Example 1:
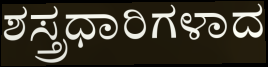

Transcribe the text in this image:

ಶಸ್ತ್ರಧಾರಿಗಳಾದ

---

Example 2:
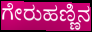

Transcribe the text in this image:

ಗೇರುಹಣ್ಣಿನ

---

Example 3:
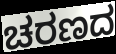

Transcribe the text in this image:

ಚರಣದ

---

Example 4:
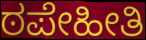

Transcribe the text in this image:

ಠಪೇಹೀತಿ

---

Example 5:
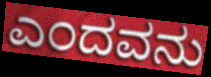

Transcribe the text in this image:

ಎಂದವನು